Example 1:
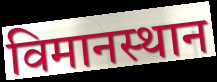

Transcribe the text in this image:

विमानस्थान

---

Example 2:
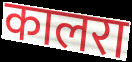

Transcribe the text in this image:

कालरा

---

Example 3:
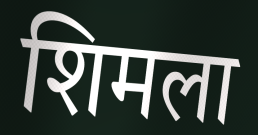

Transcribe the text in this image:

शिमला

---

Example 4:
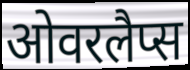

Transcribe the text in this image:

ओवरलैप्स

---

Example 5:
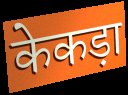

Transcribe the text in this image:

केकड़ा